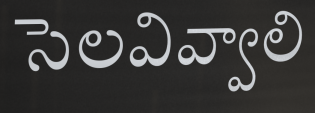
సెలవివ్వాలి